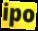
ipo